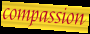
compassion